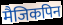
मैजिकपिन